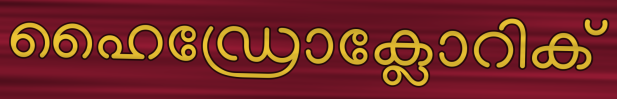
ഹൈഡ്രോക്ലോറിക്